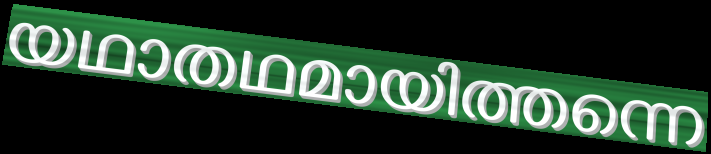
യഥാതഥമായിത്തന്നെ